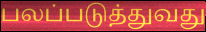
பலப்படுத்துவது